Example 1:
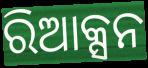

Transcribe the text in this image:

ରିଆକ୍ସନ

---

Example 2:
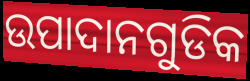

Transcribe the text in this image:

ଉପାଦାନଗୁଡିକ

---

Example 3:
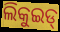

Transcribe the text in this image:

ଲିକୁଇଡ୍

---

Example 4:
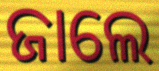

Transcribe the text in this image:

ଜାଲେ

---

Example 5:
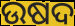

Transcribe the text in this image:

ଉଷଦ